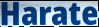
Harate